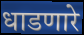
धाडणारे